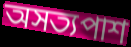
অসত্যপাশ